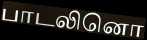
பாடலினொ